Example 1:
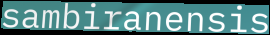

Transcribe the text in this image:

sambiranensis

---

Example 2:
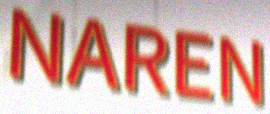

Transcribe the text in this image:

NAREN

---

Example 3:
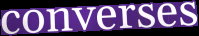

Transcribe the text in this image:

converses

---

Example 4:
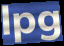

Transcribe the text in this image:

lpg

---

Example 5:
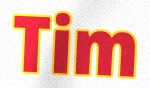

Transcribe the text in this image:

Tim